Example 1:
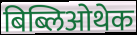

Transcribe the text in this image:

बिब्लिओथेक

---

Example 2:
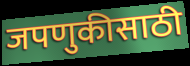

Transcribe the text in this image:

जपणुकीसाठी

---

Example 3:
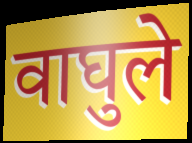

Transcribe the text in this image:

वाघुले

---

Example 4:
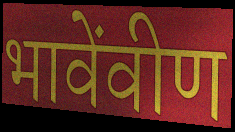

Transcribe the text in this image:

भावेंवीण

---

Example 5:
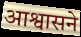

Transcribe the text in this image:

आश्वासने